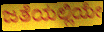
ಜತೆಯಲ್ಲಿಯೇ